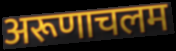
अरूणाचलम